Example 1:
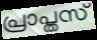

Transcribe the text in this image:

പ്രാപ്തസ്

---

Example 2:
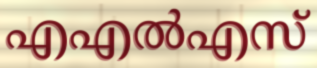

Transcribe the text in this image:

എഎൽഎസ്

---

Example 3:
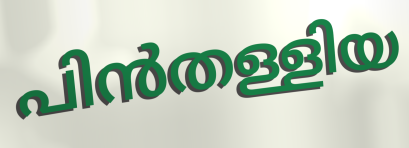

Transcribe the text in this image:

പിൻതള്ളിയ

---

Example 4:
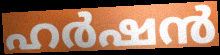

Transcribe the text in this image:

ഹർഷൻ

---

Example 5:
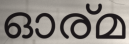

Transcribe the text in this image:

ഓര്മ